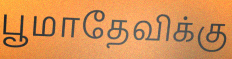
பூமாதேவிக்கு